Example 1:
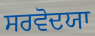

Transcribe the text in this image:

ਸਰਵੋਦਯਾ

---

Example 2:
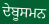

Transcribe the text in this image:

ਦੇਬੂਸਮਨ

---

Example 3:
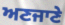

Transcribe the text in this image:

ਅਣਜਾਣੇ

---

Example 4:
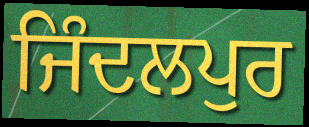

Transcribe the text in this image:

ਜਿੰਦਲਪੁਰ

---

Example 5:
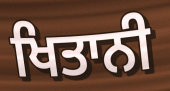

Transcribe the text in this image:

ਖਿਤਾਨੀ